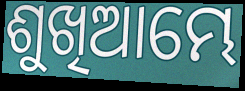
ଶୁଖିଆମ୍ଭେ